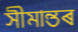
সীমান্তৰ